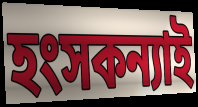
হংসকন্যাই